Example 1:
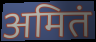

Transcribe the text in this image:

अमितं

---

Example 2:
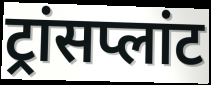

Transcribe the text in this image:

ट्रांसप्लांट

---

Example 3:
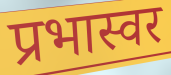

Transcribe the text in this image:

प्रभास्वर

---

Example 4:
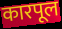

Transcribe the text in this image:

कारपूल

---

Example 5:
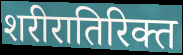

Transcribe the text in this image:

शरीरातिरिक्त